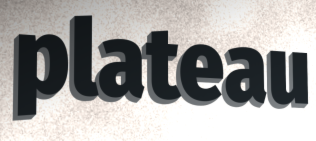
plateau